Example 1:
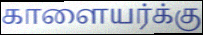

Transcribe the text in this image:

காளையர்க்கு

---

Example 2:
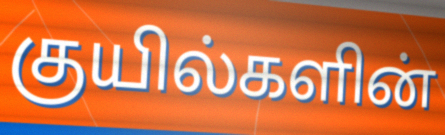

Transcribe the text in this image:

குயில்களின்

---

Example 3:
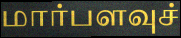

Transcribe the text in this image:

மார்பளவுச்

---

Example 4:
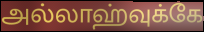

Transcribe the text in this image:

அல்லாஹ்வுக்கே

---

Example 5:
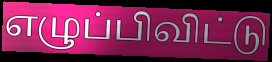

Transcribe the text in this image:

எழுப்பிவிட்டு